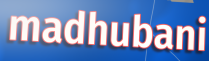
madhubani